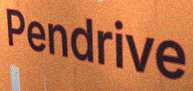
Pendrive